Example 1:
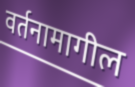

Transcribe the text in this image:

वर्तनामागील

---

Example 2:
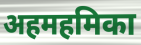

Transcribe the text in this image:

अहमहमिका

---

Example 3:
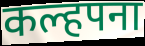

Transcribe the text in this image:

कल्हपना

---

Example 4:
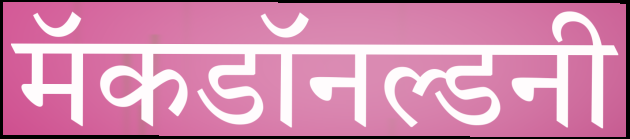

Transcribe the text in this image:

मॅकडॉनल्डनी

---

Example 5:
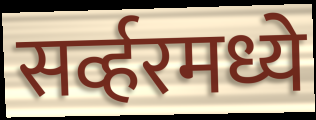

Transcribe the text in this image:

सर्व्हरमध्ये